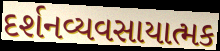
દર્શનવ્યવસાયાત્મક